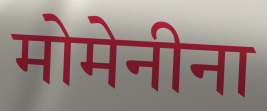
मोमेनीना